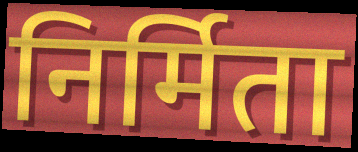
निर्मिता